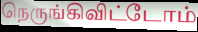
நெருங்கிவிட்டோம்